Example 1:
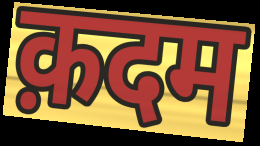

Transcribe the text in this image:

क़दम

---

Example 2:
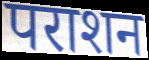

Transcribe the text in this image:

पराशन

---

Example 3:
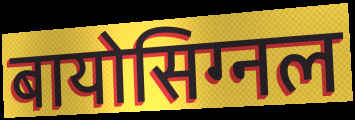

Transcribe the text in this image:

बायोसिग्नल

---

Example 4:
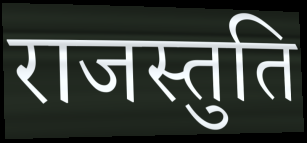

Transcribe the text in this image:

राजस्तुति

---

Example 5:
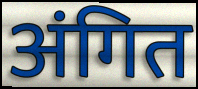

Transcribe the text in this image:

अंगित